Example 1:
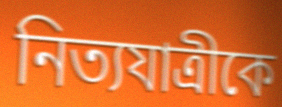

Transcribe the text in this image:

নিত্যযাত্রীকে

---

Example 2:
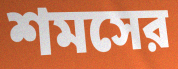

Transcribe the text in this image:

শমসের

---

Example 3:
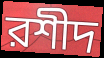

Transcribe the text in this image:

রশীদ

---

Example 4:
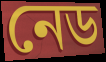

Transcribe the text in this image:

নেড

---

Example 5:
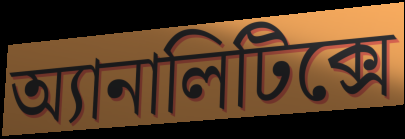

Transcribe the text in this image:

অ্যানালিটিক্সে